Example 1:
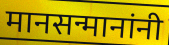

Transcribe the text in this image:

मानसन्मानांनी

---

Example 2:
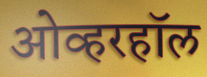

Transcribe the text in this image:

ओव्हरहॉल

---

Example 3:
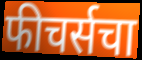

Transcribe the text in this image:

फीचर्सचा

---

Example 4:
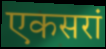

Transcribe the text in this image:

एकसरां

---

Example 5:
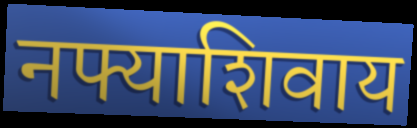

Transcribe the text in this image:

नफ्याशिवाय